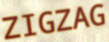
ZIGZAG